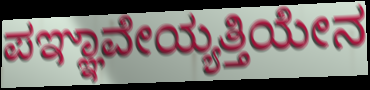
ಪಞ್ಞಾವೇಯ್ಯತ್ತಿಯೇನ